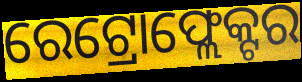
ରେଟ୍ରୋଫ୍ଲେକ୍ଟର